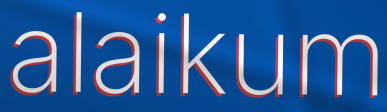
alaikum